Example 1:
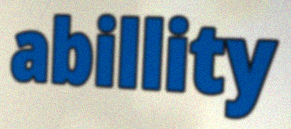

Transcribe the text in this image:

abillity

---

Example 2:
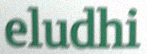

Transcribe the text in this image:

eludhi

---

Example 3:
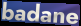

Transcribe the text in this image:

badane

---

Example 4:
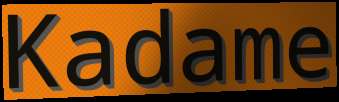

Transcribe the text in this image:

Kadame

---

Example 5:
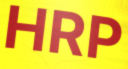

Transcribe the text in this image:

HRP